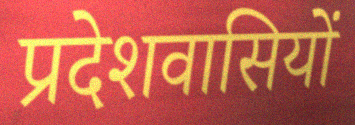
प्रदेशवासियों